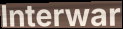
Interwar